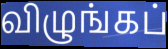
விழுங்கப்